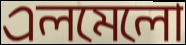
এলমেলো